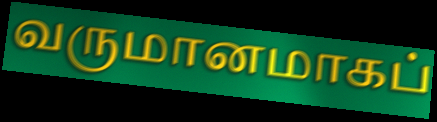
வருமானமாகப்